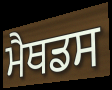
ਮੈਥਡਸ